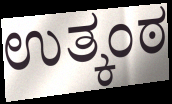
ಉತ್ಕಂಠ